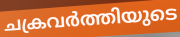
ചക്രവർത്തിയുടെ